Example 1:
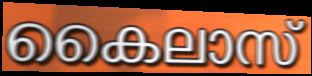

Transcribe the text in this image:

കൈലാസ്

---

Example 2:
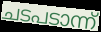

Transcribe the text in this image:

ചടപടാന്ന്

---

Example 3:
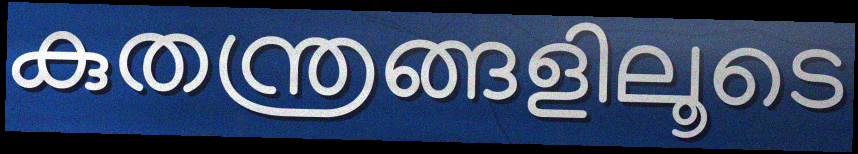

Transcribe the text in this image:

കുതന്ത്രങ്ങളിലൂടെ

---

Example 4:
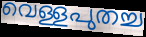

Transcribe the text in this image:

വെള്ളപുതച്ച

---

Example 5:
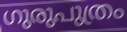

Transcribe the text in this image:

ഗുരുപുത്രം